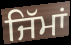
ਜਿੱਮਾਂ